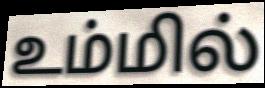
உம்மில்